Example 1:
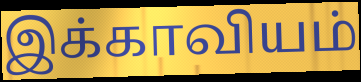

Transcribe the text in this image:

இக்காவியம்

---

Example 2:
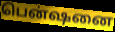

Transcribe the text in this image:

பென்ஷனை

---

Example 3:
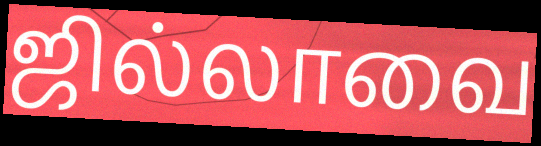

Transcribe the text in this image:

ஜில்லாவை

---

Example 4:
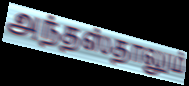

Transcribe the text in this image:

அந்தஸ்தாலும்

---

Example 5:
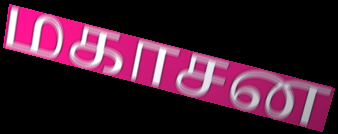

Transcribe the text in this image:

மகாசன